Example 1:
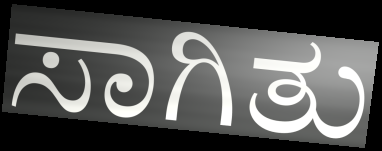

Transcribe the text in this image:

ಸಾಗಿತು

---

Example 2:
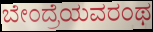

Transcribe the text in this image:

ಬೇಂದ್ರೆಯವರಂಥ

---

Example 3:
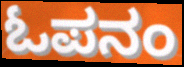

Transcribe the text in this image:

ಓಪನಂ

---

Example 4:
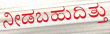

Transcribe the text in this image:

ನೀಡಬಹುದಿತ್ತು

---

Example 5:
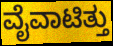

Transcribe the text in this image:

ವೈವಾಟಿತ್ತು